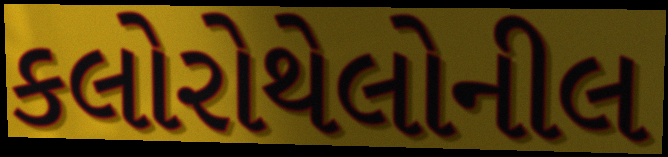
કલોરોથેલોનીલ